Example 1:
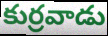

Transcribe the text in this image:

కుర్రవాడు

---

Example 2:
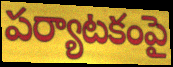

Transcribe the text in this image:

పర్యాటకంపై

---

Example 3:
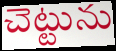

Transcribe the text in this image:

చెట్టును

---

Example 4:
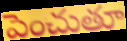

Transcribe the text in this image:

పెంచుతూ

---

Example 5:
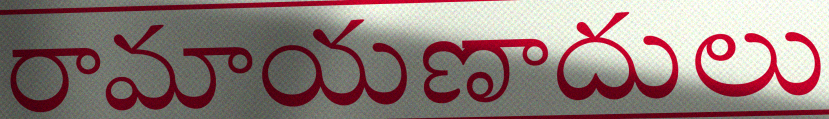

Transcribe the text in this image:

రామాయణాదులు